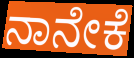
ನಾನೇಕೆ